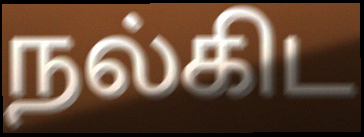
நல்கிட